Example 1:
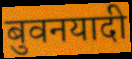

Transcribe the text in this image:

बुवनयादी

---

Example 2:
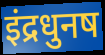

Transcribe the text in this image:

इंद्रधुनष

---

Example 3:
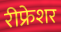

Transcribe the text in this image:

रीफ्रेशर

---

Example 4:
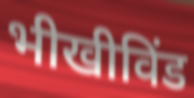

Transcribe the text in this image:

भीखीविंड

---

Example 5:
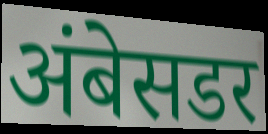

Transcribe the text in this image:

अंबेसडर